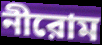
নীরোম